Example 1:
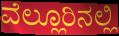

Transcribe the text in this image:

ವೆಲ್ಲೂರಿನಲ್ಲಿ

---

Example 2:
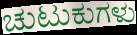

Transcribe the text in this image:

ಚುಟುಕುಗಳು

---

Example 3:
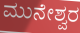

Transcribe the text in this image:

ಮುನೇಶ್ವರ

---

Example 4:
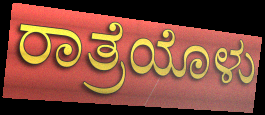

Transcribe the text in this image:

ರಾತ್ರೆಯೊಳು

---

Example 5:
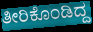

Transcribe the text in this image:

ತೀರಿಕೊಂಡಿದ್ದ